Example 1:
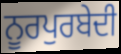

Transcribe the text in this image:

ਨੂਰਪੁਰਬੇਦੀ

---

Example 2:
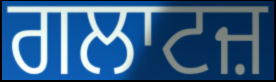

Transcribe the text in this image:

ਗਲਾਟਜ਼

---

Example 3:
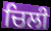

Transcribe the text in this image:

ਚਿਲੀ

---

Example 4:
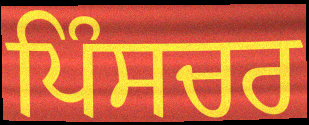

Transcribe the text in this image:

ਪਿੰਸਚਰ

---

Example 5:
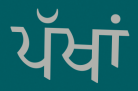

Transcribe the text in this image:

ਪੱਖਾਂ